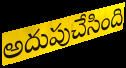
అదుపుచేసింది